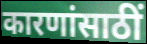
कारणांसाठीं